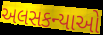
અલસકન્યાઓ